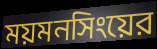
ময়মনসিংয়ের